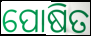
ପୋଷିତ